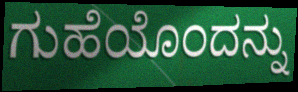
ಗುಹೆಯೊಂದನ್ನು